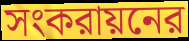
সংকরায়নের